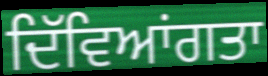
ਦਿੱਵਿਆਂਗਤਾ